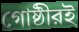
গোষ্ঠীরই